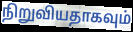
நிறுவியதாகவும்